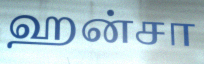
ஹன்சா